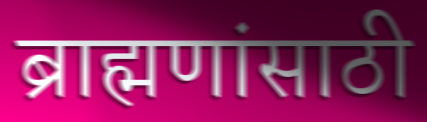
ब्राह्मणांसाठी